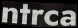
ntrca